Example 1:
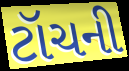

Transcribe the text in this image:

ટૉચની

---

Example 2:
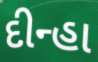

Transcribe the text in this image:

દીન્હા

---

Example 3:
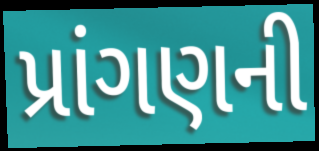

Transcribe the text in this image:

પ્રાંગણની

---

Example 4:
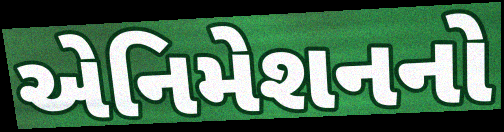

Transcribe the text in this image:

એનિમેશનનો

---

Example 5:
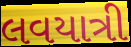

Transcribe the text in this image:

લવયાત્રી